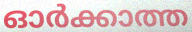
ഓർക്കാത്ത